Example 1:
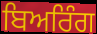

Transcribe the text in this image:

ਬਿਅਰਿੰਗ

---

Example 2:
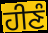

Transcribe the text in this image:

ਹੀਣੰ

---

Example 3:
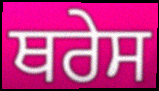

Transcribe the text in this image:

ਥਰੇਸ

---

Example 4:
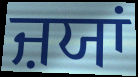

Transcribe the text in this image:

ਜ਼ਯਾਂ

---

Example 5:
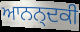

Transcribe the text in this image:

ਆਨਨ੍ਦਕੀ